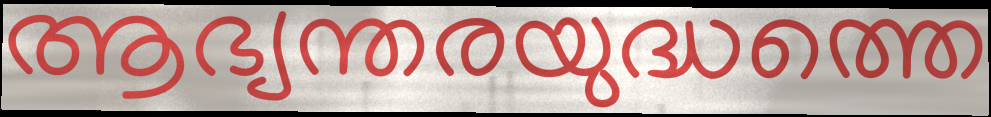
ആഭ്യന്തരയുദ്ധത്തെ